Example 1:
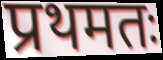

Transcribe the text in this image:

प्रथमतः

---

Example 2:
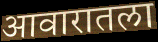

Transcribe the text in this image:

आवारातला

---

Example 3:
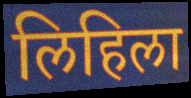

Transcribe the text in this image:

लिहिला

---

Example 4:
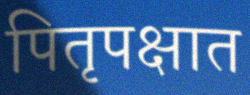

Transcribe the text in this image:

पितृपक्षात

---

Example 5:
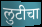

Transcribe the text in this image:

लुटीचा